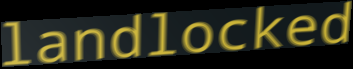
landlocked